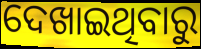
ଦେଖାଇଥିବାରୁ